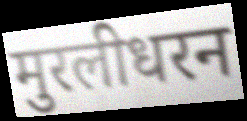
मुरलीधरन